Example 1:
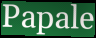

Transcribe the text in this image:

Papale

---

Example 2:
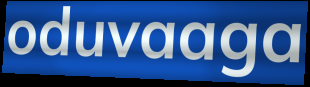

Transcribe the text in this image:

oduvaaga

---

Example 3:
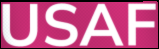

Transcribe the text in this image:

USAF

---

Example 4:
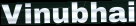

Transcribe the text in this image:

Vinubhai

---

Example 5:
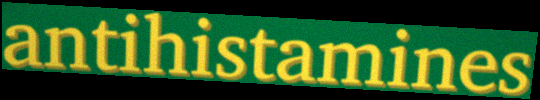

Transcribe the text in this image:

antihistamines